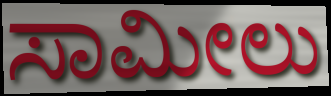
ಸಾಮೀಲು